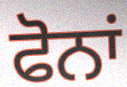
ਫੋਨਾਂ